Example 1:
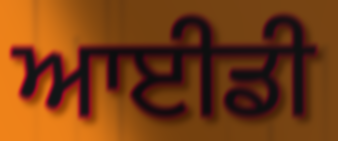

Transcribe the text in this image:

ਆਈਡੀ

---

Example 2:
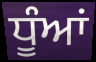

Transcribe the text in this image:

ਧੂੰਆਂ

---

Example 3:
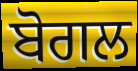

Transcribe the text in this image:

ਬੋਗਲ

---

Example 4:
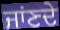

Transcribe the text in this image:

ਜਾਂਣਦੇ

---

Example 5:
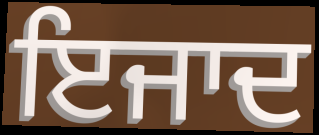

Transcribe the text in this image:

ਇਜਾਦ